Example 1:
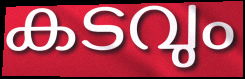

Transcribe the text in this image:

കടവും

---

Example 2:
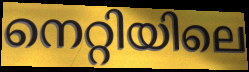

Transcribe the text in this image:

നെറ്റിയിലെ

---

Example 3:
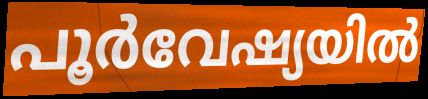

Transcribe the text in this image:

പൂർവേഷ്യയിൽ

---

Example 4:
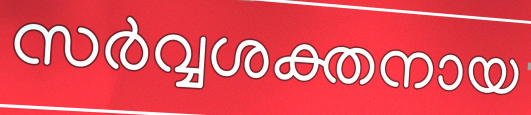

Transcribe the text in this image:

സർവ്വശക്തനായ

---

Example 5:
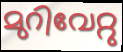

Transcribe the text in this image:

മുറിവേറ്റു